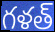
గళత్